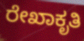
ರೇಖಾಕೃತಿ